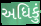
અધિકું